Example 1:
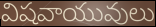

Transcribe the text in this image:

విషవాయువులు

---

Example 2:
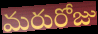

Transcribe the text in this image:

మరురోజు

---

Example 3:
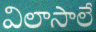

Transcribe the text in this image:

విలాసాలే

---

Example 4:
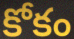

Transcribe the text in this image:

కోకం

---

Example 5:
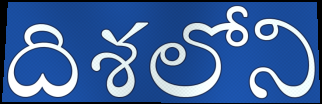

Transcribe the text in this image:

దిశలోని